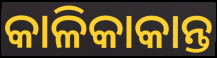
କାଳିକାକାନ୍ତ